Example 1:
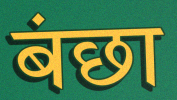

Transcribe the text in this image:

बंछा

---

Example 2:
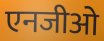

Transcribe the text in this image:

एनजीओ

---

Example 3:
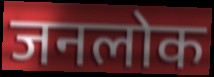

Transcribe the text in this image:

जनलोक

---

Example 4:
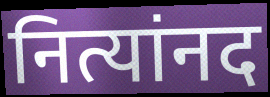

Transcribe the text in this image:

नित्यांनद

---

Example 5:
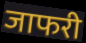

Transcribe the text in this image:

जाफरी